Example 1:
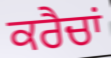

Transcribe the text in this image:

ਕਰੈਚਾਂ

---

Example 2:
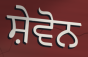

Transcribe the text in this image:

ਸ਼ੇਵੋਨ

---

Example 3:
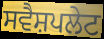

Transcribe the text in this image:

ਸਵੈਸ਼ਪਲੇਟ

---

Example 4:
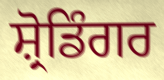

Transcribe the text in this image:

ਸ਼੍ਰੋਡਿੰਗਰ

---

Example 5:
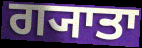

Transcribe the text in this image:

ਗ੍ਯਾਤਾ